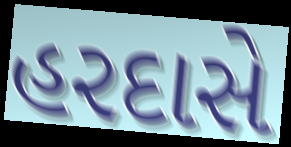
હરદાસે